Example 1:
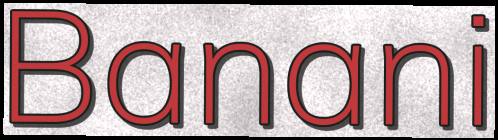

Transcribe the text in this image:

Banani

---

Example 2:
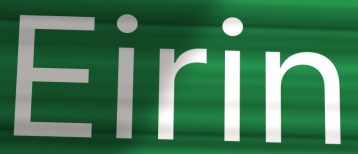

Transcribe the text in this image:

Eirin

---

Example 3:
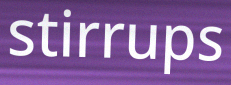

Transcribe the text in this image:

stirrups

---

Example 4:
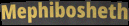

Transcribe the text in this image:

Mephibosheth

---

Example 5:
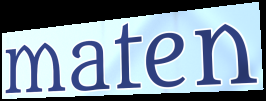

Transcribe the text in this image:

maten